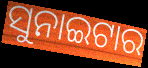
ସୁନାଇଟାର